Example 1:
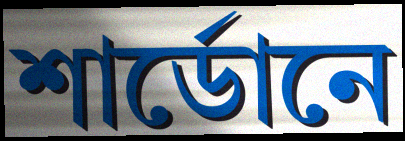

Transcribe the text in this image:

শার্ডোনে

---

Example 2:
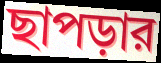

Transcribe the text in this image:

ছাপড়ার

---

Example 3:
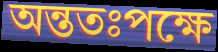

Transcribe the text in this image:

অন্ততঃপক্ষে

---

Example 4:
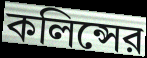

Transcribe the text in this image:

কলিন্সের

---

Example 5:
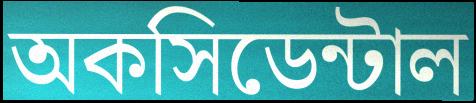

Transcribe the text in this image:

অকসিডেন্টাল